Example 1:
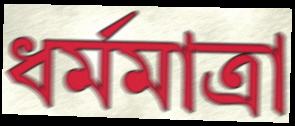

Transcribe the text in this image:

ধর্মমাত্রা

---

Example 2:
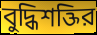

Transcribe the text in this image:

বুদ্ধিশক্তির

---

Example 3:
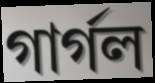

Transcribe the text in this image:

গার্গল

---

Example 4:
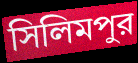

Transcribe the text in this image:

সিলিমপুর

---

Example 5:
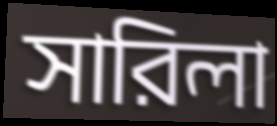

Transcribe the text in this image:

সারিলা